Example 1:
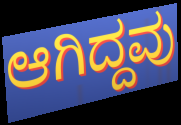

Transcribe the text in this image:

ಆಗಿದ್ದವು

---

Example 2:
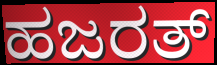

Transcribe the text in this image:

ಹಜರತ್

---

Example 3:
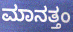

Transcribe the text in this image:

ಮಾನತ್ತಂ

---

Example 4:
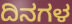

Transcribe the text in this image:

ದಿನಗಳ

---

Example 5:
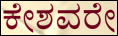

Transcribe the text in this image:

ಕೇಶವರೇ